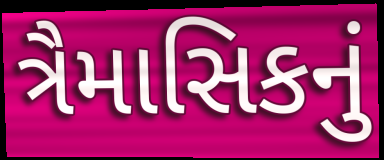
ત્રૈમાસિકનું